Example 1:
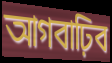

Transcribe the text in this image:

আগবাঢ়িব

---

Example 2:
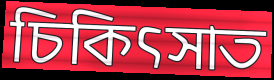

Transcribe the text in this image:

চিকিৎসাত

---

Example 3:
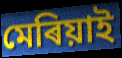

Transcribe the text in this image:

মেৰিয়াই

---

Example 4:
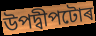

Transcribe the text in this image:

উপদ্বীপটোৰ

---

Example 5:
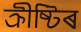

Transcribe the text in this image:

ক্ৰীষ্টিৰ